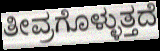
ತೀವ್ರಗೊಳ್ಳುತ್ತದೆ